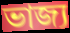
ভাজ্য